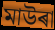
মাউৰা